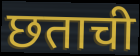
छताची